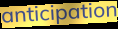
anticipation